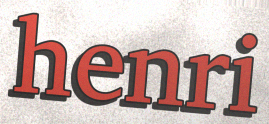
henri